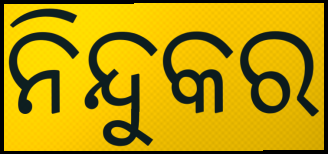
ନିନ୍ଦୁକର